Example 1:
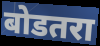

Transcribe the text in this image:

बोडतरा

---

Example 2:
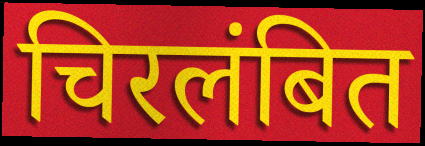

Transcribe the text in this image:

चिरलंबित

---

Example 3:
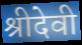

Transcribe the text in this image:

श्रीदेवी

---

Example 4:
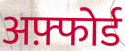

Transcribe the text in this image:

अफ़्फोर्ड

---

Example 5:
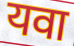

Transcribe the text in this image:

यवा